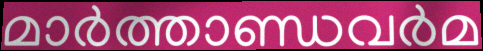
മാർത്താണ്ഡവർമ